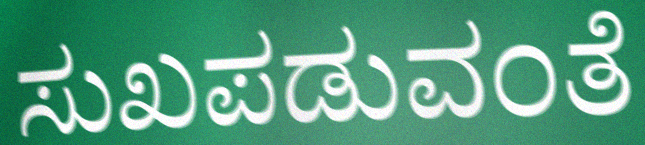
ಸುಖಪಡುವಂತೆ